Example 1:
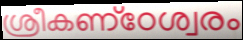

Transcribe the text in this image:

ശ്രീകണ്‌ഠേശ്വരം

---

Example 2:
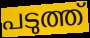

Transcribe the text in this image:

പടുത്ത്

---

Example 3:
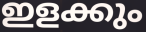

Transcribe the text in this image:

ഇളക്കും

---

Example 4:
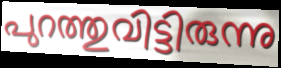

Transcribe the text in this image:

പുറത്തുവിട്ടിരുന്നു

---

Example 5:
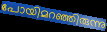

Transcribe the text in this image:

പോയിമറഞ്ഞിരുന്നു